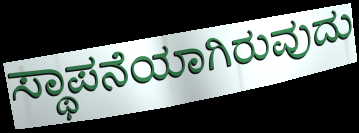
ಸ್ಥಾಪನೆಯಾಗಿರುವುದು